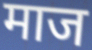
माज